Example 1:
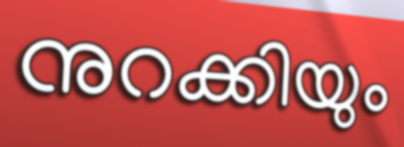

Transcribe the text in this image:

നുറക്കിയും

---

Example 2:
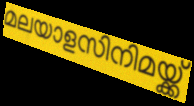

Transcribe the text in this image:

മലയാളസിനിമയ്ക്ക്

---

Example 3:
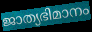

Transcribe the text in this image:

ജാത്യഭിമാനം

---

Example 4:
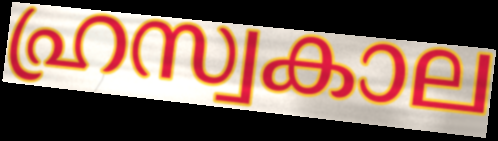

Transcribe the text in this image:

ഹ്രസ്വകാല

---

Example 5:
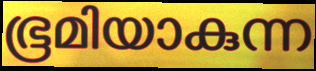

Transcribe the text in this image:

ഭൂമിയാകുന്ന